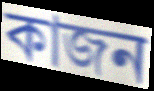
কাজন